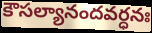
కౌసల్యానందవర్ధనః